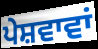
ਪੇਸ਼ਵਾਵਾਂ